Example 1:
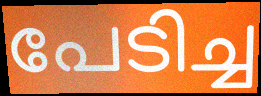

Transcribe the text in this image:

പേടിച്ച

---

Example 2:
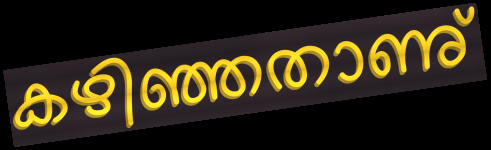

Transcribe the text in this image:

കഴിഞ്ഞതാണു്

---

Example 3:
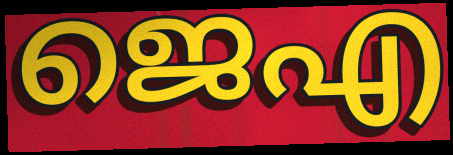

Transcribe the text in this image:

ജെഎ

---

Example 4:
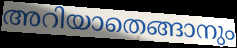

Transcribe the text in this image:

അറിയാതെങ്ങാനും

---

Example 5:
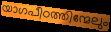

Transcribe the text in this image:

യാഗപീഠത്തിന്മേലും